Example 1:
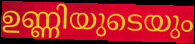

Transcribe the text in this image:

ഉണ്ണിയുടെയും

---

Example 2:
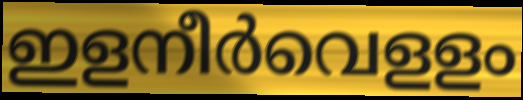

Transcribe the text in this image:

ഇളനീർവെളളം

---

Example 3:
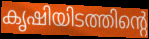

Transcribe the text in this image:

കൃഷിയിടത്തിന്റെ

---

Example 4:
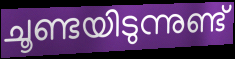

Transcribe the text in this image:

ചൂണ്ടയിടുന്നുണ്ട്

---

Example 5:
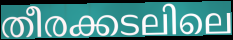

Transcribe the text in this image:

തീരക്കടലിലെ